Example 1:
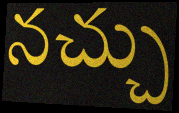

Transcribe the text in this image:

నచ్చు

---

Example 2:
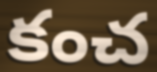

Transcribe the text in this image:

కంచ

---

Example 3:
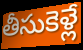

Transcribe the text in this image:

తీసుకెళ్లే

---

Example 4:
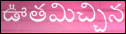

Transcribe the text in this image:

ఊతమిచ్చిన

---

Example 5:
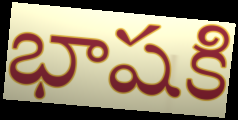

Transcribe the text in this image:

భాషకి